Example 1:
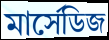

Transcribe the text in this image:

মার্সেডিজ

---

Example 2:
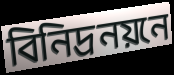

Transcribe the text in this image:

বিনিদ্রনয়নে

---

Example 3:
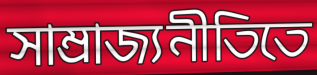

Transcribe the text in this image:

সাম্রাজ্যনীতিতে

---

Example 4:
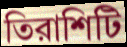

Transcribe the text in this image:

তিরাশিটি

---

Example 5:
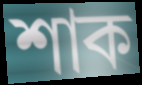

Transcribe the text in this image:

শাক